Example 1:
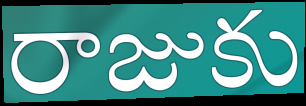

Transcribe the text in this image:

రాజుకు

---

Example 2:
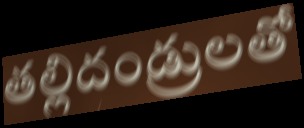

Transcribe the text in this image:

తల్లిదండ్రులతో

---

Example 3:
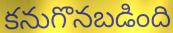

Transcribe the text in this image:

కనుగొనబడింది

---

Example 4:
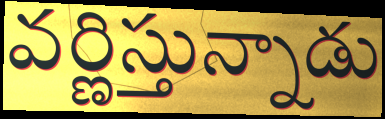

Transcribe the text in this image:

వర్ణిస్తున్నాడు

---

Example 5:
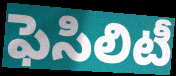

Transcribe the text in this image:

ఫెసిలిటీ